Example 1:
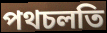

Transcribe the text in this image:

পথচলতি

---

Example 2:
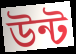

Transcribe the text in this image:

উন্ট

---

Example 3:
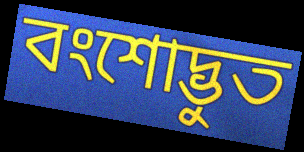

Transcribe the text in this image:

বংশোদ্ভুত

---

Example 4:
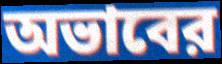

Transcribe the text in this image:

অভাবের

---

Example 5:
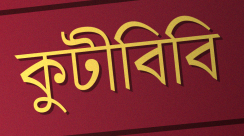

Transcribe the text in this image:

কুটীবিবি